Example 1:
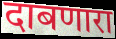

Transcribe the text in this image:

दाबणारा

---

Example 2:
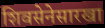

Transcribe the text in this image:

शिवसेनेसारखा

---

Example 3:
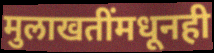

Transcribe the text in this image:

मुलाखतींमधूनही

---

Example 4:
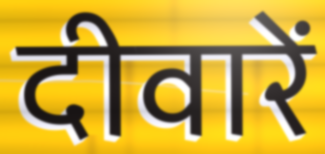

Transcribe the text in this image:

दीवारें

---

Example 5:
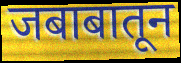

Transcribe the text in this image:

जबाबातून